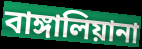
বাঙ্গালিয়ানা